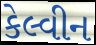
કેલ્વીન